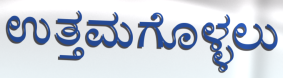
ಉತ್ತಮಗೊಳ್ಳಲು